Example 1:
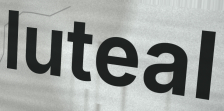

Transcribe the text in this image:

luteal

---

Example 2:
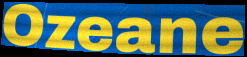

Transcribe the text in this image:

Ozeane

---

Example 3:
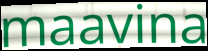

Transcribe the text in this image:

maavina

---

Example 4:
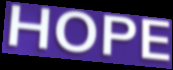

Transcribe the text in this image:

HOPE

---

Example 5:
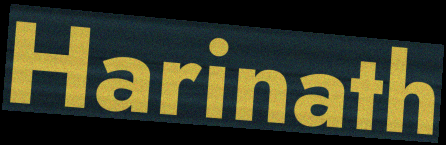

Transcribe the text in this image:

Harinath